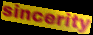
sincerity